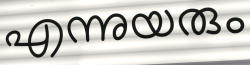
എന്നുയരും